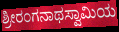
ಶ್ರೀರಂಗನಾಥಸ್ವಾಮಿಯ